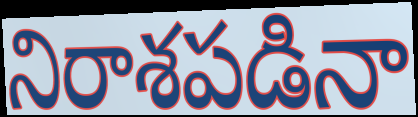
నిరాశపడినా